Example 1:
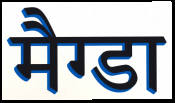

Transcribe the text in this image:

मैग्डा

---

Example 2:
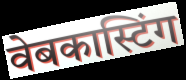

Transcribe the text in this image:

वेबकास्टिंग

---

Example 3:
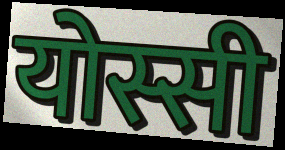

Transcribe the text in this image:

योस्सी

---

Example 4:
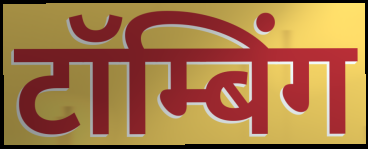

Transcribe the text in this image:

टॉम्बिंग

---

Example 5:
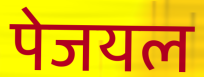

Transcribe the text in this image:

पेजयल